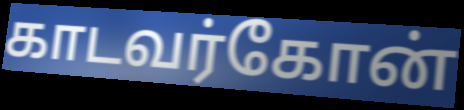
காடவர்கோன்